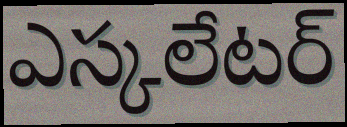
ఎస్కలేటర్